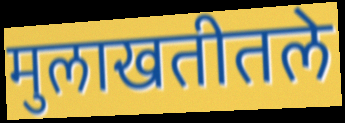
मुलाखतीतले